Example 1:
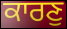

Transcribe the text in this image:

ਕਾਰਣੁ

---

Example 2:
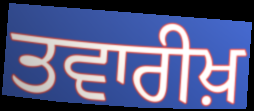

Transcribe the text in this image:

ਤਵਾਰੀਖ਼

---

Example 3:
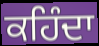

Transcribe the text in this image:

ਕਹਿੰਦਾ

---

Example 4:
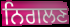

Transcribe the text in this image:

ਨਿਗਲਣ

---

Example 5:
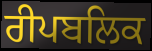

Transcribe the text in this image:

ਰੀਪਬਲਿਕ